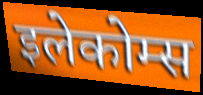
इलेकोम्स